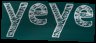
yeye